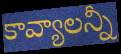
కావ్యాలన్నీ